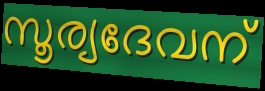
സൂര്യദേവന്